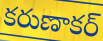
కరుణాకర్